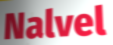
Nalvel